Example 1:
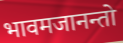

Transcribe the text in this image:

भावमजानन्तो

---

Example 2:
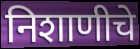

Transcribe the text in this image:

निशाणीचे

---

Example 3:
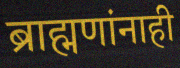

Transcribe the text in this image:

ब्राह्मणांनाही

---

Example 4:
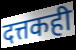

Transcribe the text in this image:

दत्तकही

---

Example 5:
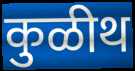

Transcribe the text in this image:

कुळीथ